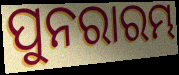
ପୁନରାରମ୍ଭ